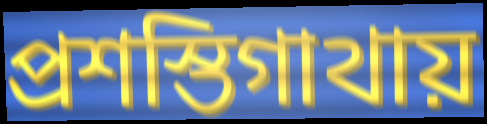
প্রশস্তিগাথায়